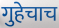
गुहेचाच